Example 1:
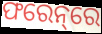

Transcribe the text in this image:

ଫରେନ୍‌ରେ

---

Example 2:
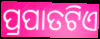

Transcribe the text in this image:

ପ୍ରପାତଟିଏ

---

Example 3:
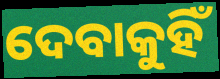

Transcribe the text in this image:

ଦେବାକୁହିଁ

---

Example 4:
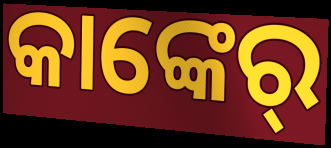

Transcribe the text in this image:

କାଙ୍କେର୍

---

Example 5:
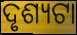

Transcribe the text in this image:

ଦୃଶ୍ୟଟା